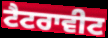
ਟੈਟਰਾਵੀਟ